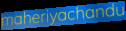
maheriyachandu